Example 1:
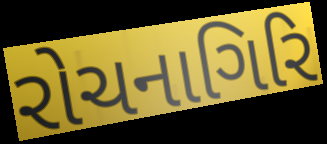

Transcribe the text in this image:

રોચનાગિરિ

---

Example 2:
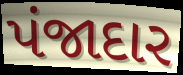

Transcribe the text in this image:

પંજાદાર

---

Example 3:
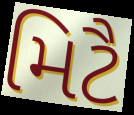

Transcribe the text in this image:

મિટૈ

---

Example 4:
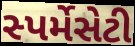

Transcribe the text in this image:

સ્પર્મેસેટી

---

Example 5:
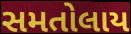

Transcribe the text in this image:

સમતોલાય